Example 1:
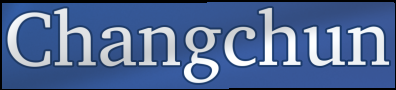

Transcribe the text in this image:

Changchun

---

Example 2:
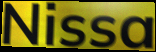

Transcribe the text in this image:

Nissa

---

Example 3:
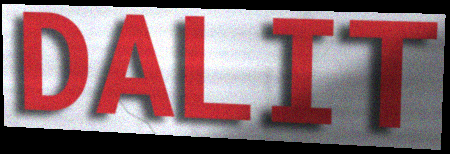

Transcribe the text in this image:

DALIT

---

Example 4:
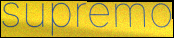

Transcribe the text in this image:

supremo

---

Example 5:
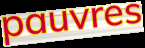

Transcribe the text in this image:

pauvres